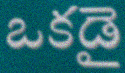
ఒకడై